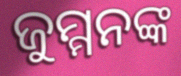
ଜୁମ୍ମନଙ୍କ